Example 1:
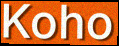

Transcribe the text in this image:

Koho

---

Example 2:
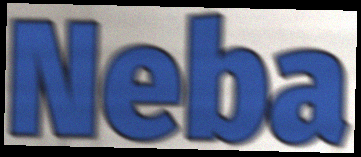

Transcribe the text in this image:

Neba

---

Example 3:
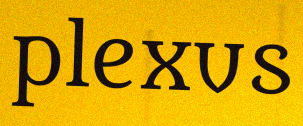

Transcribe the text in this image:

plexus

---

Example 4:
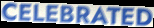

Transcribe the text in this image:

CELEBRATED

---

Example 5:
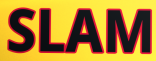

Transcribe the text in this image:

SLAM